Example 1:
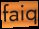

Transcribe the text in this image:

faiq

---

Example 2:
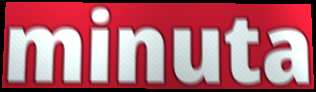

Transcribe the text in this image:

minuta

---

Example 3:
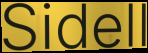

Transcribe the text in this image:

Sidell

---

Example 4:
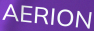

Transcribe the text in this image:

AERION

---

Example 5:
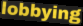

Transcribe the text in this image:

lobbying